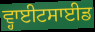
ਵ੍ਹਾਈਟਸਾਈਡ